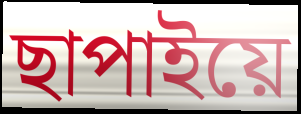
ছাপাইয়ে